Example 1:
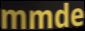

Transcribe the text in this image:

mmde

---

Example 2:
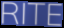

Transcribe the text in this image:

RITE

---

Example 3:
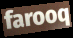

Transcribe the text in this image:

farooq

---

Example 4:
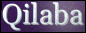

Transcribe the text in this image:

Qilaba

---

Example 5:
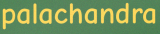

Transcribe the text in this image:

palachandra